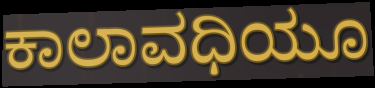
ಕಾಲಾವಧಿಯೂ